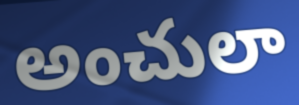
అంచులా